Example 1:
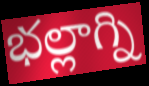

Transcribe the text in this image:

భల్లాగ్ని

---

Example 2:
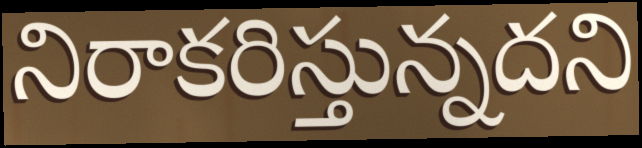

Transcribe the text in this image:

నిరాకరిస్తున్నదని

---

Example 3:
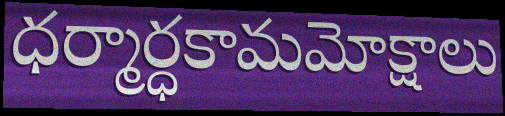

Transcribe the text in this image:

ధర్మార్ధకామమోక్షాలు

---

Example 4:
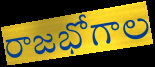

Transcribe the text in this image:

రాజభోగాల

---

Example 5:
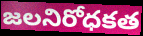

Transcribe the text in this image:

జలనిరోధకత